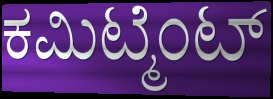
ಕಮಿಟ್ಮೆಂಟ್